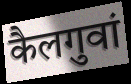
कैलगुवां